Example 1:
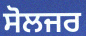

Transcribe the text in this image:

ਸੋਲਜਰ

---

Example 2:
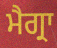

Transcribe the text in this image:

ਮੈਗ੍ਰਾ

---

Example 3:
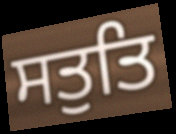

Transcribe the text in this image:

ਸਤੁਤਿ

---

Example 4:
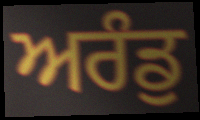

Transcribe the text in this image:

ਅਰੰਡੁ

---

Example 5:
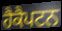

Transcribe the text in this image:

ਹੈਕੈਪਟਨ